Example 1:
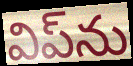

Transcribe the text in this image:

విప్‌ను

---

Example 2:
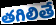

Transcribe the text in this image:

తగిలితే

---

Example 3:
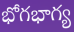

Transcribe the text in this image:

భోగభాగ్య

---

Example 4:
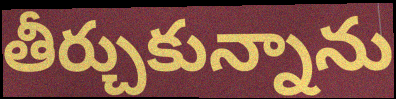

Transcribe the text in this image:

తీర్చుకున్నాను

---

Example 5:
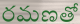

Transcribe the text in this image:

రమణతో